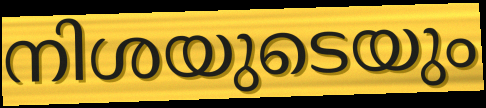
നിശയുടെയും